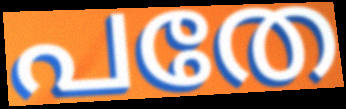
പതേ